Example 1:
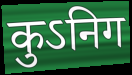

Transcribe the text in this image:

कुऽनिग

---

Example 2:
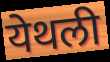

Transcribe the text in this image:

येथली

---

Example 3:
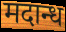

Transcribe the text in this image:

मदान्ध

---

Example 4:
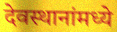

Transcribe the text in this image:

देवस्थानांमध्ये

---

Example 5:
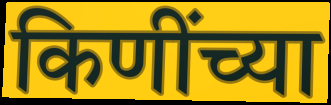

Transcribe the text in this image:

किणींच्या